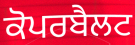
ਕੋਪਰਬੈਲਟ